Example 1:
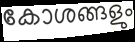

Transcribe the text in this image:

കോശങ്ങളും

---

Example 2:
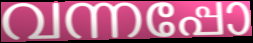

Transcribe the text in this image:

വന്നപ്പോ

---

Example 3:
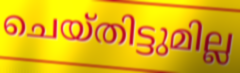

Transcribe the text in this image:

ചെയ്തിട്ടുമില്ല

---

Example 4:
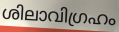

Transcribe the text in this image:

ശിലാവിഗ്രഹം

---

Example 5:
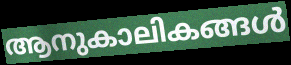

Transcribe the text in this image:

ആനുകാലികങ്ങൾ